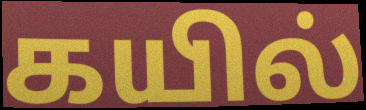
கயில்